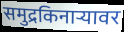
समुद्रकिनाऱ्यावर